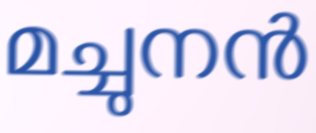
മച്ചുനൻ